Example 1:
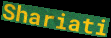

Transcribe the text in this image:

Shariati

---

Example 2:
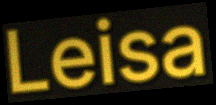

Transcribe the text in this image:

Leisa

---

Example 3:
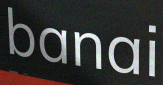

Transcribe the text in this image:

banai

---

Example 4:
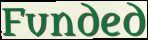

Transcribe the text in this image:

Funded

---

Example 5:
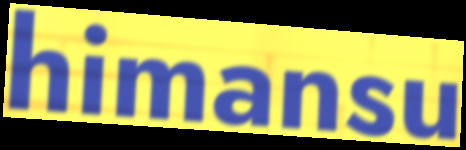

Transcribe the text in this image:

himansu